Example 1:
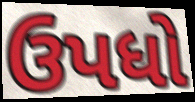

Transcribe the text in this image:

ઉપધો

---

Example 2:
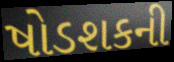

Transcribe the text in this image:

ષોડશકની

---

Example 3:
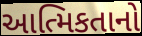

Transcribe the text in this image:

આત્મિકતાનો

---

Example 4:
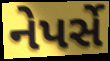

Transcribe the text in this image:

નેપર્સે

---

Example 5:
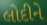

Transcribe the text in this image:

લોદીને